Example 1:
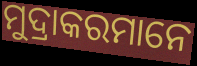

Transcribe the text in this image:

ମୁଦ୍ରାକରମାନେ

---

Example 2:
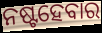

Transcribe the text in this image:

ନଷ୍ଟହେବାର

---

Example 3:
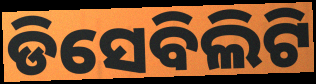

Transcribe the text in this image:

ଡିସେବିଲିଟି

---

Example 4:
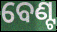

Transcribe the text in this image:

ବେଣ୍ଟ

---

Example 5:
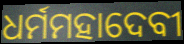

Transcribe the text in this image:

ଧର୍ମମହାଦେବୀ